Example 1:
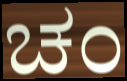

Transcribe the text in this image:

ಚಂ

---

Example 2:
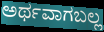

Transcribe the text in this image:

ಅರ್ಥವಾಗಬಲ್ಲ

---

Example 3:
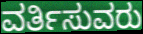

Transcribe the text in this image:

ವರ್ತಿಸುವರು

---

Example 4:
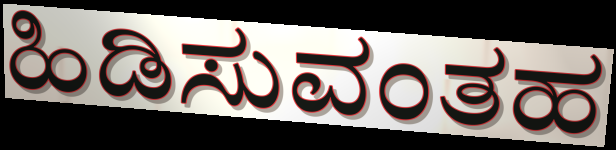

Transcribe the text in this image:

ಹಿಡಿಸುವಂತಹ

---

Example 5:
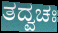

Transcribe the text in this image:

ತದ್ವಚಃ